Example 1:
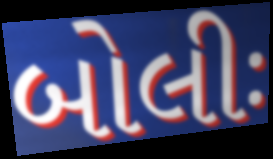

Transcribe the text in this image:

બોલીઃ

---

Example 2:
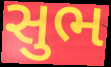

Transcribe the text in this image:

સુભ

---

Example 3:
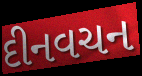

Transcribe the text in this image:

દીનવચન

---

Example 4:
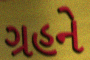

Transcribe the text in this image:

ગ્રહને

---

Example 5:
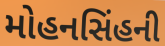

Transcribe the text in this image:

મોહનસિંહની